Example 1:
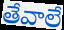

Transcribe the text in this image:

తేవాలే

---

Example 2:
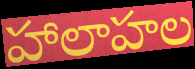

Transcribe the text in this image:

హాలాహల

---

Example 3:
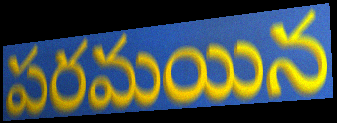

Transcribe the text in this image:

పరమయిన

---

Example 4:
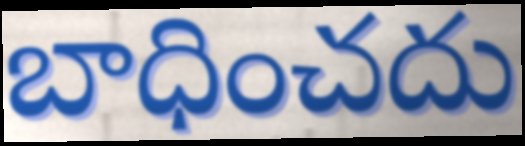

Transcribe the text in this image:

బాధించదు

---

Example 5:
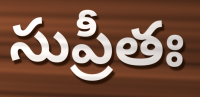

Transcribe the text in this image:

సుప్రీతః